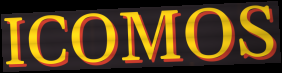
ICOMOS